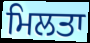
ਮਿਲਤਾ